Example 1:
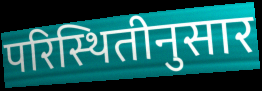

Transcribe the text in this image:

परिस्थितीनुसार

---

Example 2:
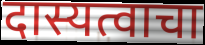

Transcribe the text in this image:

दास्यत्वाचा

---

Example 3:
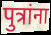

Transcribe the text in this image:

पुत्रांना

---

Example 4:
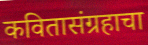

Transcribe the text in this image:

कवितासंग्रहाचा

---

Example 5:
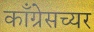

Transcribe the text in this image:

काँग्रेसच्यर